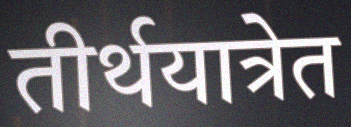
तीर्थयात्रेत